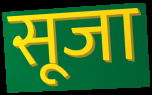
सूजा